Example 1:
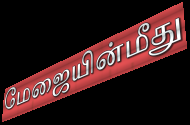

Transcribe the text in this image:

மேஜையின்மீது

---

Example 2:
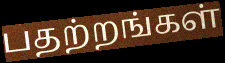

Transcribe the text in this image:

பதற்றங்கள்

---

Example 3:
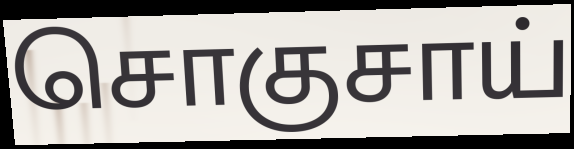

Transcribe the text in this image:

சொகுசாய்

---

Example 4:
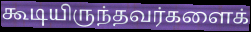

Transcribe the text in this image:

கூடியிருந்தவர்களைக்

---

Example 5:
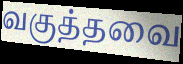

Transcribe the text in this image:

வகுத்தவை